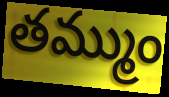
తమ్ముం